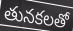
తునకలతో